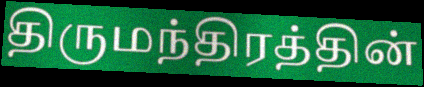
திருமந்திரத்தின்